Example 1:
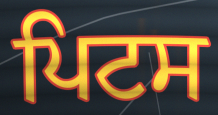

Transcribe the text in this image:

ਪਿਟਸ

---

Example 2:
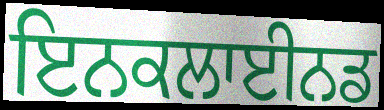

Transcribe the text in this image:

ਇਨਕਲਾਈਨਡ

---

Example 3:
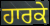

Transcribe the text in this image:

ਹਾਰਕੇ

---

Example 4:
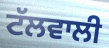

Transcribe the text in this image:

ਟੱਲਵਾਲੀ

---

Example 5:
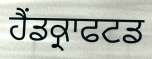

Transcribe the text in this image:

ਹੈਂਡਕ੍ਰਾਫਟਡ